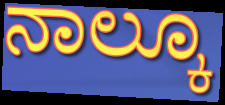
ನಾಲ್ಕೂ